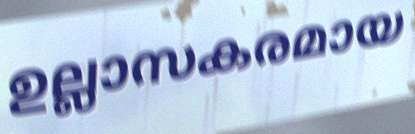
ഉല്ലാസകരമായ